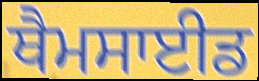
ਥੈਮਸਾਈਡ